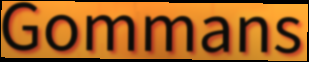
Gommans